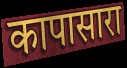
कापासारा